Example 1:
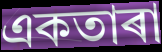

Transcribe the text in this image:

একতাৰা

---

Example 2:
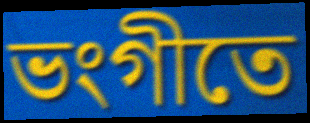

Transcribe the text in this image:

ভংগীতে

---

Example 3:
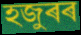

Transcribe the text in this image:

হজুৰৰ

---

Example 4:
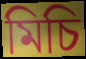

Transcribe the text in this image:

মিচি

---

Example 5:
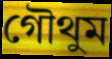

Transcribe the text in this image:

গৌথুম